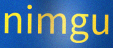
nimgu